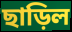
ছাড়িল